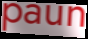
paun